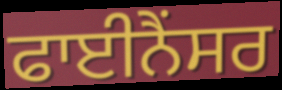
ਫਾਈਨੈਂਸਰ